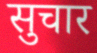
सुचार